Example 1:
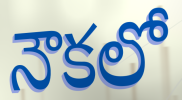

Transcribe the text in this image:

నౌకలో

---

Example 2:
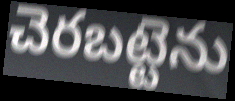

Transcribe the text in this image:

చెరబట్టెను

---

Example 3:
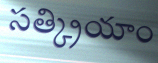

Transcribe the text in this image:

సత్క్రియాం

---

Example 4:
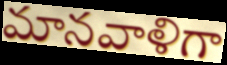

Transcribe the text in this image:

మానవాళిగా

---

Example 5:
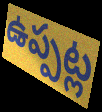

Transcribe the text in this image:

ఉప్పట్ల